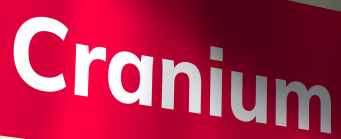
Cranium